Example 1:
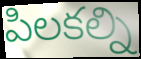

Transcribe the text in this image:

పిలకల్ని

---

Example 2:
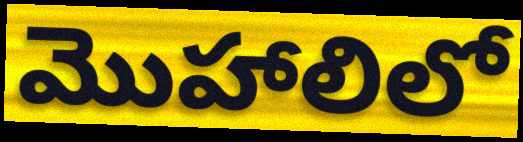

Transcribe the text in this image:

మొహాలిలో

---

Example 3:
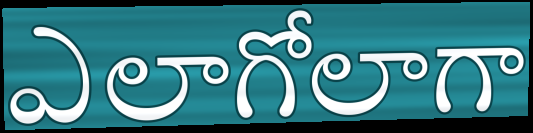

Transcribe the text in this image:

ఎలాగోలాగా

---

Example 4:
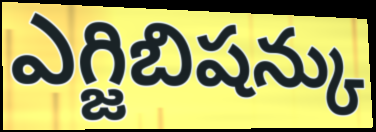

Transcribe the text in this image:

ఎగ్జిబిషన్కు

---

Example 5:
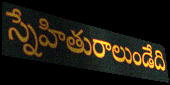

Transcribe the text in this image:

స్నేహితురాలుండేది